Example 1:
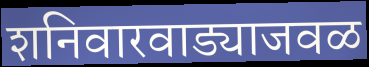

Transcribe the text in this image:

शनिवारवाड्याजवळ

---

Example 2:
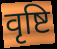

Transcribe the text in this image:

वृष्टि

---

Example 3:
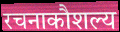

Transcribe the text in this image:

रचनाकौशल्य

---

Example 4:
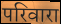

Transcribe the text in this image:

परिवारा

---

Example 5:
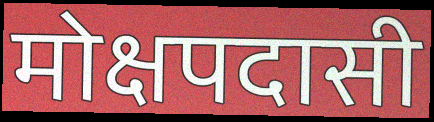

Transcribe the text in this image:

मोक्षपदासी